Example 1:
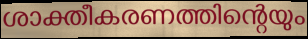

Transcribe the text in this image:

ശാക്തീകരണത്തിന്റെയും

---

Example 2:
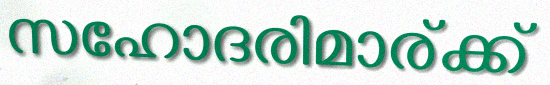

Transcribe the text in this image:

സഹോദരിമാര്ക്ക്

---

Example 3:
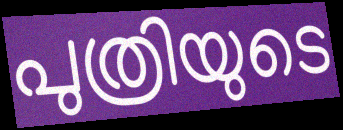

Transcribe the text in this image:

പുത്രിയുടെ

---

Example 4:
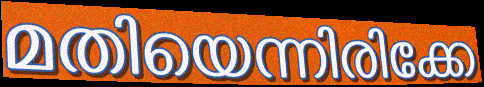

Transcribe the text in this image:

മതിയെന്നിരിക്കേ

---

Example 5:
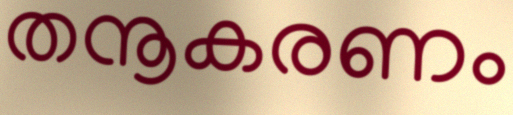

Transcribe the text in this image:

തനൂകരണം